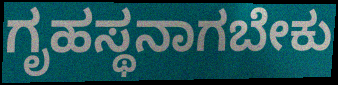
ಗೃಹಸ್ಥನಾಗಬೇಕು